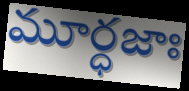
మూర్ధజాః